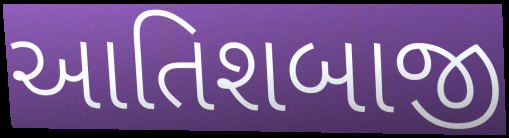
આતિશબાજી